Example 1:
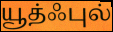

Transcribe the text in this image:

யூத்ஃபுல்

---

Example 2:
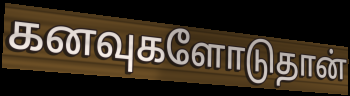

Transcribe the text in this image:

கனவுகளோடுதான்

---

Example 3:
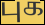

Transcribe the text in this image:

புக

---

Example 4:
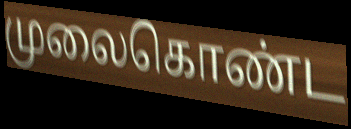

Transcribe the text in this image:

முலைகொண்ட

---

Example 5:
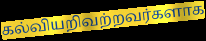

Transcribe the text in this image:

கல்வியறிவற்றவர்களாக